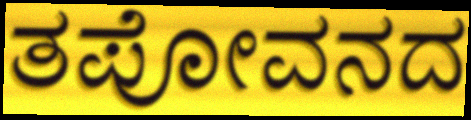
ತಪೋವನದ